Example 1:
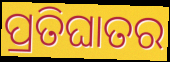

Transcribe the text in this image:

ପ୍ରତିଘାତର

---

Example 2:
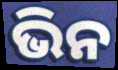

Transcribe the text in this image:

ଭିନ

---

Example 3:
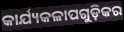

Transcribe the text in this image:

କାର୍ଯ୍ୟକଳାପଗୁଡ଼ିକର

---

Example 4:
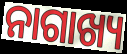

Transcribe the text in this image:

ନାଗାଖ୍ୟ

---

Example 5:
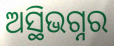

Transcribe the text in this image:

ଅସ୍ଥିଭଗ୍ନର